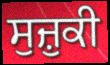
ਸੁਜ਼ੁਕੀ